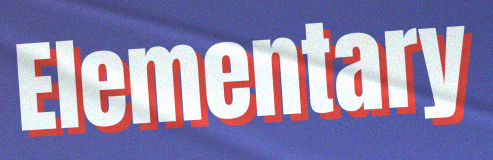
Elementary